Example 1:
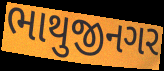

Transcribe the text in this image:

ભાથુજીનગર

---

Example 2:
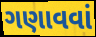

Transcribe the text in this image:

ગણાવવાં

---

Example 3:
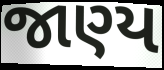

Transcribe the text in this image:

જાણ્ય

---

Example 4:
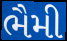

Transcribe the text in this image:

ભૈમી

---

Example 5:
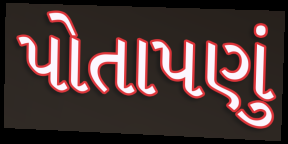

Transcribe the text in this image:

પોતાપણું